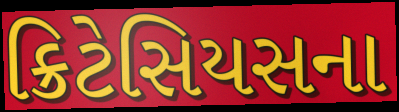
ક્રિટેસિયસના